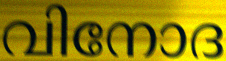
വിനോദ